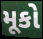
મૂકો